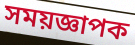
সময়জ্ঞাপক